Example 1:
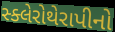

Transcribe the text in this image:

સ્ક્લેરોથેરાપીનો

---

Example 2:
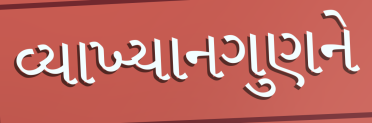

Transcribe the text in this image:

વ્યાખ્યાનગુણને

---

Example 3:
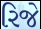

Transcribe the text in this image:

રિજે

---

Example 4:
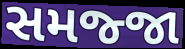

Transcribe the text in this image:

સમજ્જા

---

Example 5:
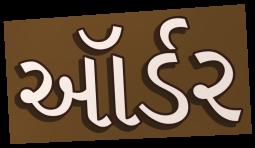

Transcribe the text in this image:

ઑર્ડર